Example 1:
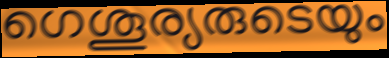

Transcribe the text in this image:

ഗെശൂര്യരുടെയും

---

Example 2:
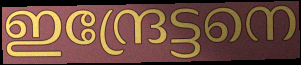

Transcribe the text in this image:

ഇന്ദ്രേട്ടനെ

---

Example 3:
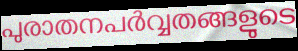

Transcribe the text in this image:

പുരാതനപർവ്വതങ്ങളുടെ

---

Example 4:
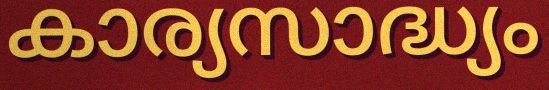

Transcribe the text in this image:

കാര്യസാദ്ധ്യം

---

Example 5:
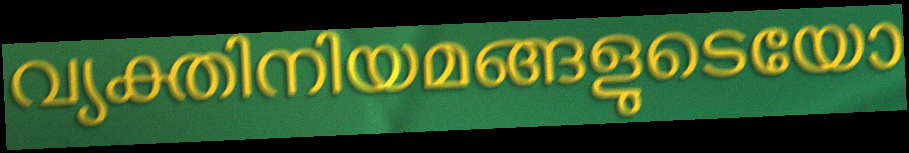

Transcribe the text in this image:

വ്യക്തിനിയമങ്ങളുടെയോ